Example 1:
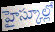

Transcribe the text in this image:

హైస్కూల్లో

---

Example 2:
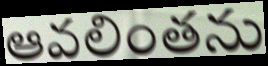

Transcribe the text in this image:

ఆవలింతను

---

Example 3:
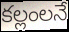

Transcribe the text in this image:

కల్లంలనే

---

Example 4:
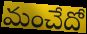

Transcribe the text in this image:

మంచేదో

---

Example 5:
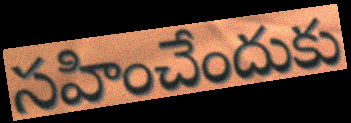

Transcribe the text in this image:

సహించేందుకు